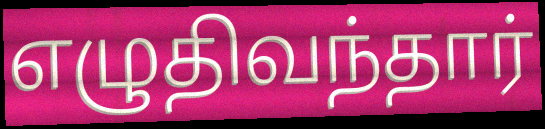
எழுதிவந்தார்